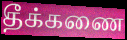
தீக்கணை